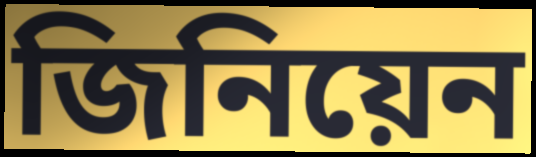
জিনিয়েন